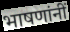
भाषणांनीं